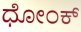
ಧೋಂಕ್